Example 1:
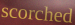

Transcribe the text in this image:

scorched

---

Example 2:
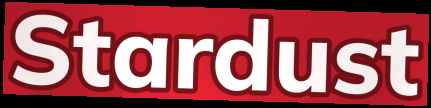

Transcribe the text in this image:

Stardust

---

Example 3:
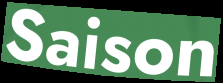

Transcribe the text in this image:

Saison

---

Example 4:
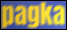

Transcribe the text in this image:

pagka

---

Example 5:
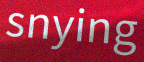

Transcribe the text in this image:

snying